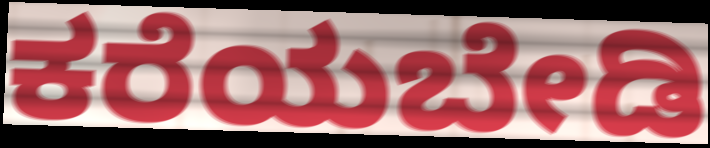
ಕರೆಯಬೇಡಿ